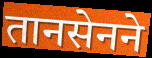
तानसेनने